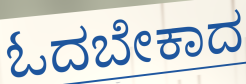
ಓದಬೇಕಾದ